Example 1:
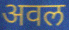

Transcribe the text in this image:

अवल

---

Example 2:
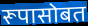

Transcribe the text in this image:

रूपासोबत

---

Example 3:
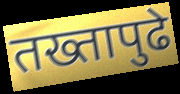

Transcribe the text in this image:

तख्तापुढे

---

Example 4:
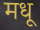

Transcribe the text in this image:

मधू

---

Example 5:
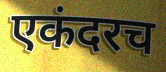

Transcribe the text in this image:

एकंदरच